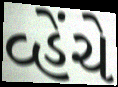
વ્હેંચે